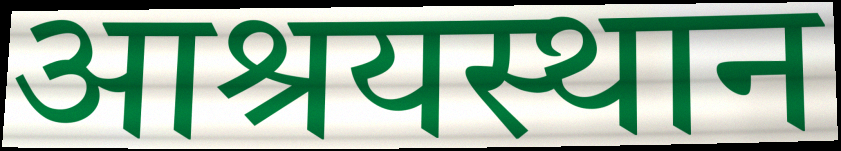
आश्रयस्थान